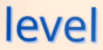
level